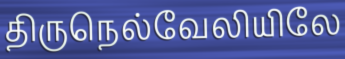
திருநெல்வேலியிலே